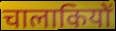
चालाकियों